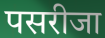
पसरीजा